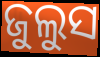
ଜୁଲୁସ